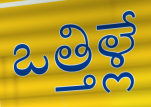
ఒత్తిళ్లే